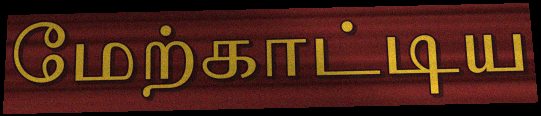
மேற்காட்டிய